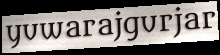
yuwarajgurjar